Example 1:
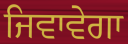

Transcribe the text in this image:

ਜਿਵਾਵੇਗਾ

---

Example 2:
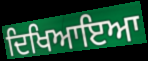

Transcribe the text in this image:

ਦਿਖਿਆਇਆ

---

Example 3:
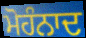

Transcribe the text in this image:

ਮੋਹੰਨਾਦ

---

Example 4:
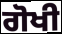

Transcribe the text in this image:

ਗੋਖੀ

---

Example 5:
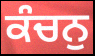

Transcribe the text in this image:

ਕੰਚਨੁ